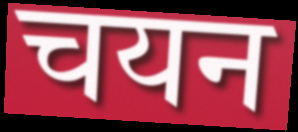
चयन